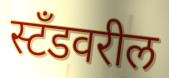
स्टँडवरील